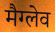
मैग्लेव